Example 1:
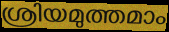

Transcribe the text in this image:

ശ്രിയമുത്തമാം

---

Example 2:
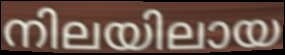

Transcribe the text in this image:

നിലയിലായ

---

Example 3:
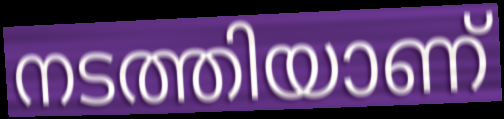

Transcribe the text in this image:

നടത്തിയാണ്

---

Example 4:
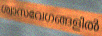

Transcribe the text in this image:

ശ്വാസവേഗങ്ങളിൽ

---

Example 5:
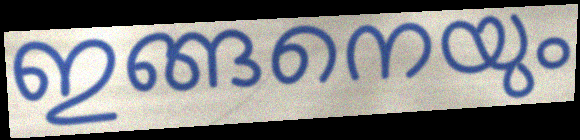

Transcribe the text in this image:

ഇങ്ങനെയും